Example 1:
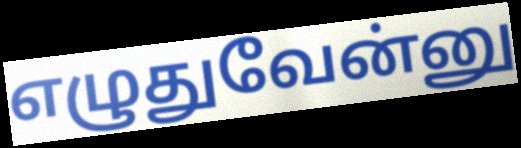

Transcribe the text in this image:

எழுதுவேன்னு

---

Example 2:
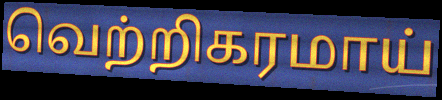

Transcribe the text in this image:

வெற்றிகரமாய்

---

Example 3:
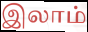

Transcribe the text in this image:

இலாம்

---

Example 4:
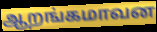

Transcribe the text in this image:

ஆறங்கமாவன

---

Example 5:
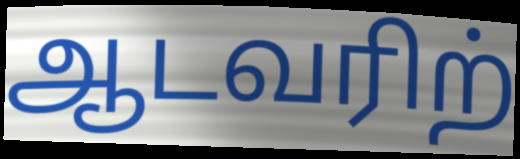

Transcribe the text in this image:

ஆடவரிற்